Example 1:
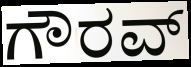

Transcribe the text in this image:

ಗೌರವ್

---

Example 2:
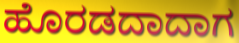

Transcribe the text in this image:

ಹೊರಡದಾದಾಗ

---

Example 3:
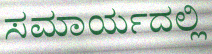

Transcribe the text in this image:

ಸಮಾರ್ಯದಲ್ಲಿ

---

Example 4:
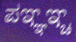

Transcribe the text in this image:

ಪಞ್ಞಞ್ಚ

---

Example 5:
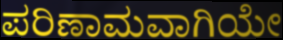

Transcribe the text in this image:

ಪರಿಣಾಮವಾಗಿಯೇ